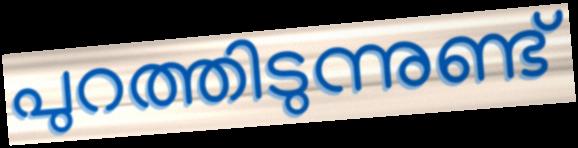
പുറത്തിടുന്നുണ്ട്